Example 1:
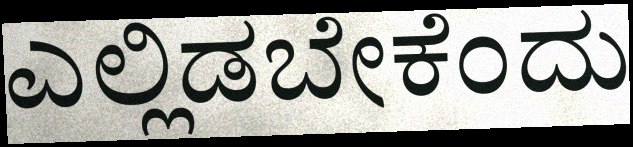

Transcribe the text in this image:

ಎಲ್ಲಿಡಬೇಕೆಂದು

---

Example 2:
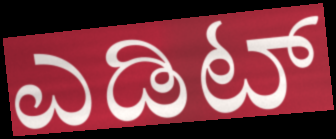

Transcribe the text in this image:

ಎಡಿಟ್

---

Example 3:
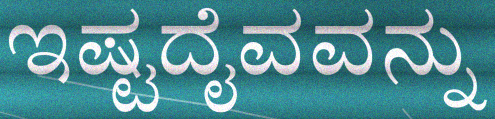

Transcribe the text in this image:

ಇಷ್ಟದೈವವನ್ನು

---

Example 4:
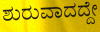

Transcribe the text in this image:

ಶುರುವಾದದ್ದೇ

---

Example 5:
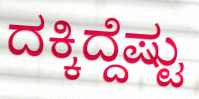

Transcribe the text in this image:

ದಕ್ಕಿದ್ದೆಷ್ಟು